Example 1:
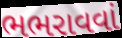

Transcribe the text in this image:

ભભરાવવાં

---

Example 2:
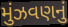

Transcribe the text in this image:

મુંઝવણનું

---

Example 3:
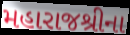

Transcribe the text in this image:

મહારાજશ્રીના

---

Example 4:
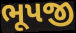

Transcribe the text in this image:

ભૂપજી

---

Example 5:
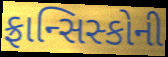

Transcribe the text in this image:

ફ્રાન્સિસ્કોની